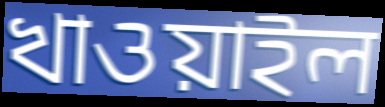
খাওয়াইল